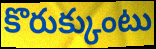
కొరుక్కుంటు